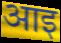
आइ